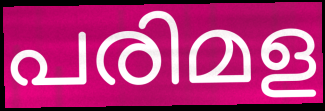
പരിമള